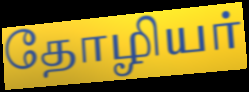
தோழியர்